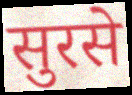
सुरसे